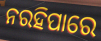
ନରହିପାରେ